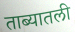
ताब्यातली